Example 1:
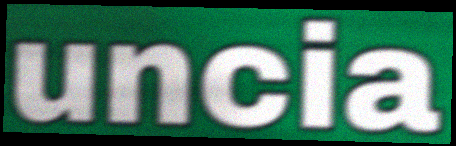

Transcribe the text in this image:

uncia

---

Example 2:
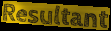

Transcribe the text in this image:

Resultant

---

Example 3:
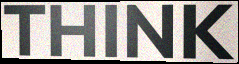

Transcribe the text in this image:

THINK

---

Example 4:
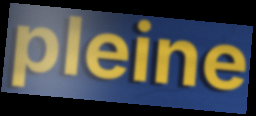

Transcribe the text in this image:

pleine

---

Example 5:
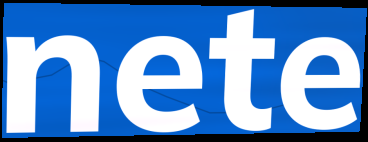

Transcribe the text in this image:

nete